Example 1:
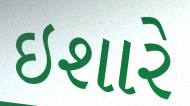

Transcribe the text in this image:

ઇશારે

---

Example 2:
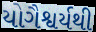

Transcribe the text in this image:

યોગૈશ્વર્યથી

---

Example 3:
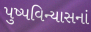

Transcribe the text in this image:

પુષ્પવિન્યાસનાં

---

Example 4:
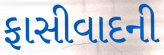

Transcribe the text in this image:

ફાસીવાદની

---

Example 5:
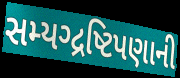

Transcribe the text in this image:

સમ્યગ્દ્રષ્ટિપણાની